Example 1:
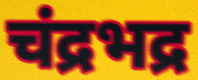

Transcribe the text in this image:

चंद्रभद्र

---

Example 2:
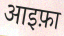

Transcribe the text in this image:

आइफ़ा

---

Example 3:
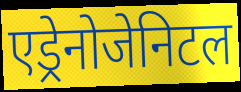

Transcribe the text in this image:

एड्रेनोजेनिटल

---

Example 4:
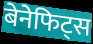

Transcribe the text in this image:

बेनेफिट्स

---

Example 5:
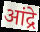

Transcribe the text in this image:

आंद्रे